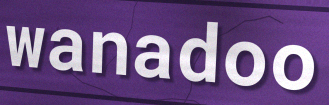
wanadoo